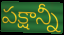
పక్షాన్నీ